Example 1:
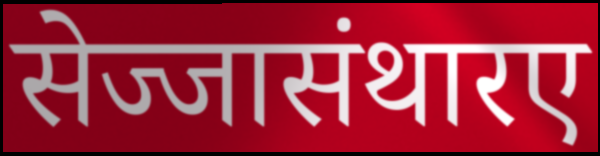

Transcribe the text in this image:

सेज्जासंथारए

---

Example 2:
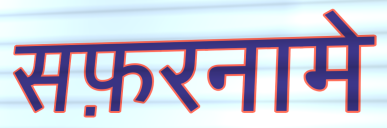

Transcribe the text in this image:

सफ़रनामे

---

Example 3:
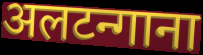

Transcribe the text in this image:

अलटन्गाना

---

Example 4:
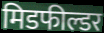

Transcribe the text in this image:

मिडफील्डर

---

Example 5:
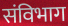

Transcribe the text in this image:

संविभाग